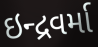
ઇન્દ્રવર્મા